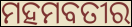
ମହମବତୀର